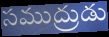
సముద్రుడు